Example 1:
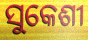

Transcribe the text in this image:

ସୁକେଶୀ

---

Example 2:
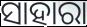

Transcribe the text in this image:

ସାହାରା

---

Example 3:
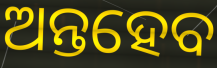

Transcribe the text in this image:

ଅନ୍ତହେବ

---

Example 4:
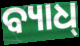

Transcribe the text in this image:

ବ୍ୟାଧ୍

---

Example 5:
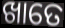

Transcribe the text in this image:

ଖାତେ